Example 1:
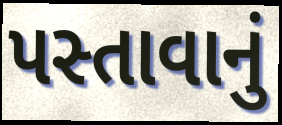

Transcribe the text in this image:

પસ્તાવાનું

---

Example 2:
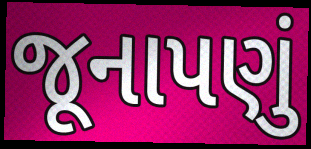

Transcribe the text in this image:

જૂનાપણું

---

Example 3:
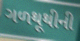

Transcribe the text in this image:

ગળથૂથીની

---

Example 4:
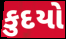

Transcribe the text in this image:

કુદયો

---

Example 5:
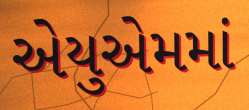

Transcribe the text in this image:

એયુએમમાં